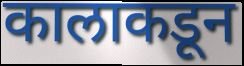
कालाकडून